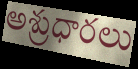
అశ్రుధారలు